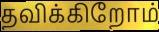
தவிக்கிறோம்